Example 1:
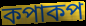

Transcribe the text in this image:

কপাকপ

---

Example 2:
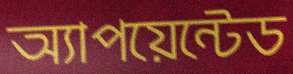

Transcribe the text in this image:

অ্যাপয়েন্টেড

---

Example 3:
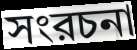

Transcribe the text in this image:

সংরচনা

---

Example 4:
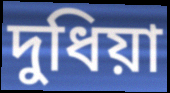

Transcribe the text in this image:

দুধিয়া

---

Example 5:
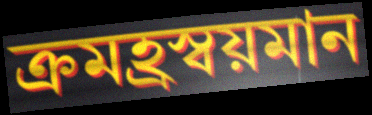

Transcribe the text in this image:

ক্রমহ্রস্বয়মান